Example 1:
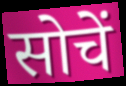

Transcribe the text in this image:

सोचें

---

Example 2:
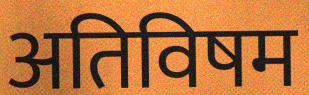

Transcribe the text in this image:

अतिविषम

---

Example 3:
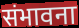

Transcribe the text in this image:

संभावना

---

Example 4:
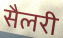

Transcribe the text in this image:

सैलरी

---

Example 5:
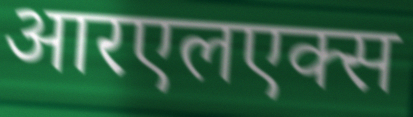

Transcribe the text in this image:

आरएलएक्स